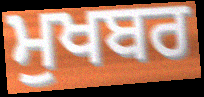
ਮੁਖਬਰ